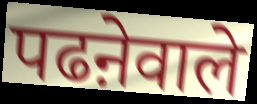
पढऩेवाले